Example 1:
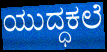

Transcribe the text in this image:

ಯುದ್ಧಕಲೆ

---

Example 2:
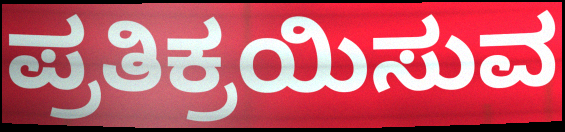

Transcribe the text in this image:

ಪ್ರತಿಕ್ರಯಿಸುವ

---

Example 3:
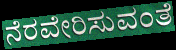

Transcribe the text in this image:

ನೆರವೇರಿಸುವಂತೆ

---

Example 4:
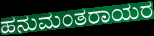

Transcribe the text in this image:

ಹನುಮಂತರಾಯರ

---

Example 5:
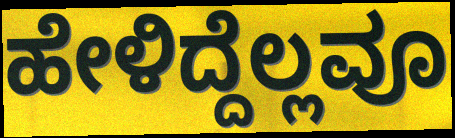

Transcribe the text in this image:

ಹೇಳಿದ್ದೆಲ್ಲವೂ